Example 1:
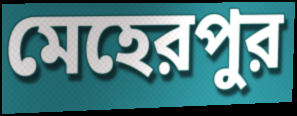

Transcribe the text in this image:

মেহেরপুর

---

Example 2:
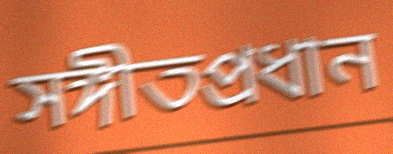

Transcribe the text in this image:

সঙ্গীতপ্রধান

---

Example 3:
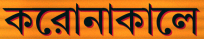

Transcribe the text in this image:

করোনাকালে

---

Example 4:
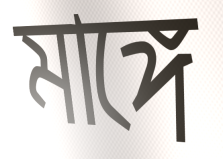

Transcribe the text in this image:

মাঙ্গে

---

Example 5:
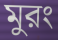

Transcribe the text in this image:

মুরং